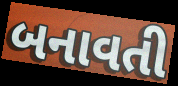
બનાવતી